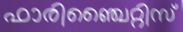
ഫാരിഞ്ചൈറ്റിസ്